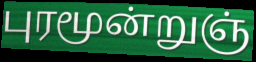
புரமூன்றுஞ்